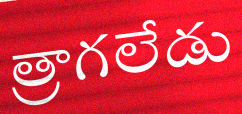
త్రాగలేడు